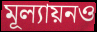
মূল্যায়নও